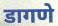
डागणे